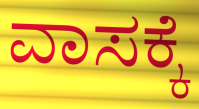
ವಾಸಕ್ಕೆ